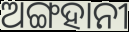
ଅଙ୍ଗହାନୀ